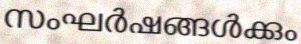
സംഘർഷങ്ങൾക്കും